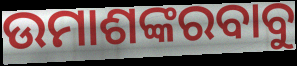
ଉମାଶଙ୍କରବାବୁ